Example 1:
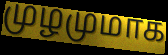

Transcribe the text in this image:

முழமுமாக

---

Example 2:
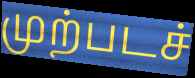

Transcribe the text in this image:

முற்படச்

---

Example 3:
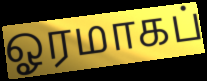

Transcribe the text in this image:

ஓரமாகப்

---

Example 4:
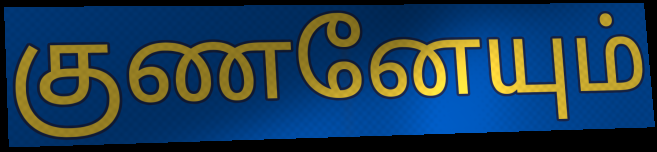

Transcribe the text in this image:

குணனேயும்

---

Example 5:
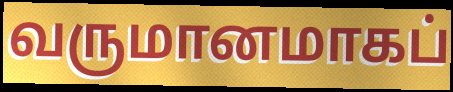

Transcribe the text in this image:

வருமானமாகப்